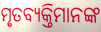
ମୃତବ୍ୟକ୍ତିମାନଙ୍କ